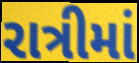
રાત્રીમાં